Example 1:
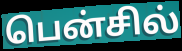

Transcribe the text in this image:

பென்சில்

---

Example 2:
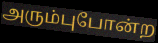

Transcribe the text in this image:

அரும்புபோன்ற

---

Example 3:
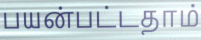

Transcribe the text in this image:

பயன்பட்டதாம்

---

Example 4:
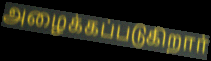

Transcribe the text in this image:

அழைக்கப்படுகிறார்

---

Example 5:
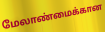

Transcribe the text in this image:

மேலாண்மைக்கான